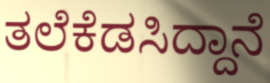
ತಲೆಕೆಡಸಿದ್ದಾನೆ